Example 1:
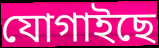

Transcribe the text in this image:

যোগাইছে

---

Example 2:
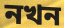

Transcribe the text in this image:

নখন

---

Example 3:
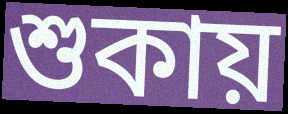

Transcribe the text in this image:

শুকায়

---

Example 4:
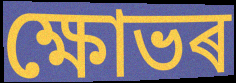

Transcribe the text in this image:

ক্ষোভৰ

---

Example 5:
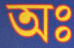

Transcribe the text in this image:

অঃ